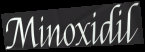
Minoxidil